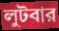
লুটবার